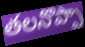
తలనొప్పా